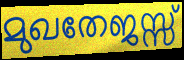
മുഖതേജസ്സ്